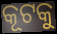
କୂଟକୁ